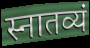
स्नातव्यं